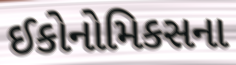
ઈકોનોમિકસના